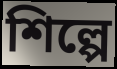
শিল্পে